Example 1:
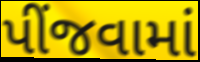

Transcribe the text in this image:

પીંજવામાં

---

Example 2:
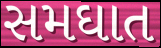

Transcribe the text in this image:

સમઘાત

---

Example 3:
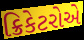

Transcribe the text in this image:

ક્રિકેટરોએ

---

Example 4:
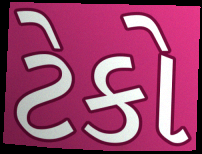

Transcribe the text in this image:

ટેકો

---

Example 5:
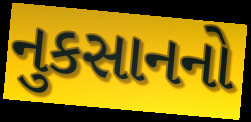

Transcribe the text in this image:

નુકસાનનો